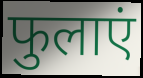
फुलाएं